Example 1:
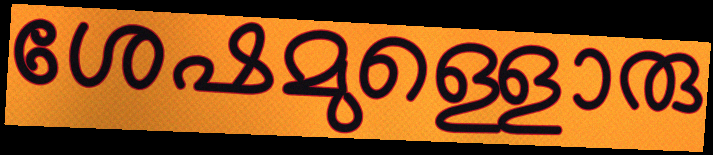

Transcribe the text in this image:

ശേഷമുള്ളൊരു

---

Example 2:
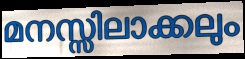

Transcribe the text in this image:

മനസ്സിലാക്കലും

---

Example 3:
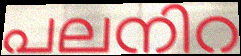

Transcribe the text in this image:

പലനിറ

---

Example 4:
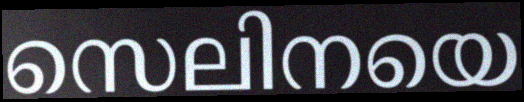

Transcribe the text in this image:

സെലിനയെ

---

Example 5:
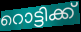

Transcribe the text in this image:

റൊട്ടിക്ക്